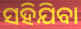
ସହିଯିବା